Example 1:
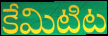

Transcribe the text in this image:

కేమిటిట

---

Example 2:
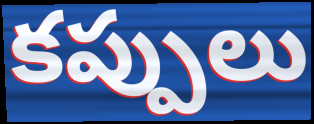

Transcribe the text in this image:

కప్పులు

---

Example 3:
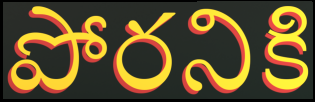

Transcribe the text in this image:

పోరనికి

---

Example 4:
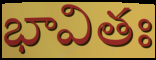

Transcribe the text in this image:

భావితః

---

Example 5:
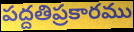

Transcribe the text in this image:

పద్దతిప్రకారము